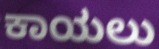
ಕಾಯಲು